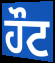
ਹੌਟ